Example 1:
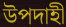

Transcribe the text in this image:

উপদাহী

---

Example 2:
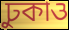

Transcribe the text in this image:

ঢুকাও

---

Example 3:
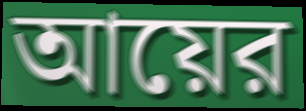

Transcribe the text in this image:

আয়ের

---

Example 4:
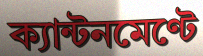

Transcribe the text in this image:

ক্যান্টনমেণ্টে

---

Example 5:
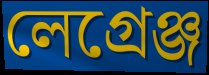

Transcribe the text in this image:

লেগ্রেঞ্জ